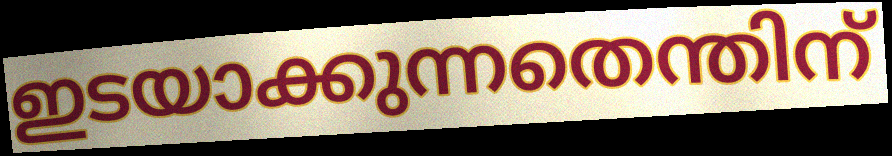
ഇടയാക്കുന്നതെന്തിന്